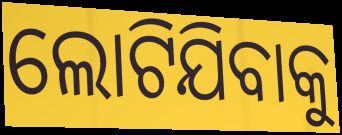
ଲୋଟିଯିବାକୁ